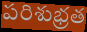
పరిశుభ్రత